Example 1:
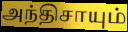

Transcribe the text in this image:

அந்திசாயும்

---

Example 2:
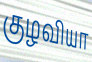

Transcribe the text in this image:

குழவியா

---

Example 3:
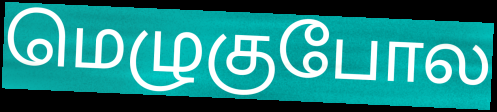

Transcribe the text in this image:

மெழுகுபோல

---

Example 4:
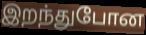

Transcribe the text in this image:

இறந்துபோன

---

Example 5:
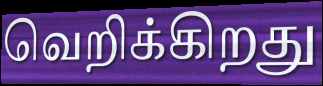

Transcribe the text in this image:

வெறிக்கிறது